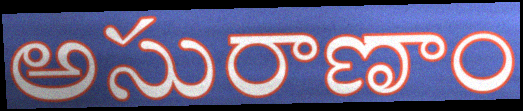
అసురాణాం